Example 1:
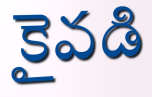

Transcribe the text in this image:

కైవడి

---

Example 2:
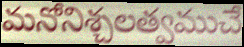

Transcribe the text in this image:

మనోనిశ్చలత్వముచే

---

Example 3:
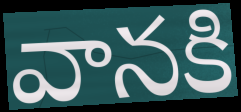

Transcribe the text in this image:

వానకి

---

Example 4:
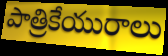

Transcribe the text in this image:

పాత్రికేయురాలు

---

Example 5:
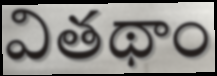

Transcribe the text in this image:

వితథాం